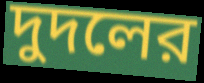
দুদলের